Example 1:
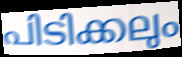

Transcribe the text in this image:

പിടിക്കലും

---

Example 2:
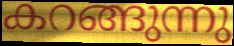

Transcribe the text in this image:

കറങ്ങുന്നു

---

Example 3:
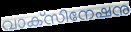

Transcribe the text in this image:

വാക്‌സിനേഷനു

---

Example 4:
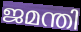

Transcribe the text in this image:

ജമന്തി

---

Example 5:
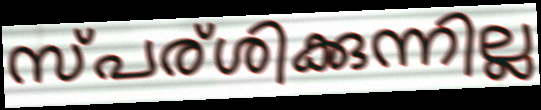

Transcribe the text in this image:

സ്പര്ശിക്കുന്നില്ല